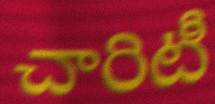
చారిటీ